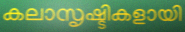
കലാസൃഷ്ടികളായി